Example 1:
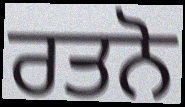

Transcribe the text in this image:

ਰਤਨੋ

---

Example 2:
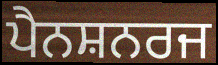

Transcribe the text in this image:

ਪੈਨਸ਼ਨਰਜ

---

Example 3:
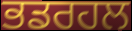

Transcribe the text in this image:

ਭਡਰਹਲ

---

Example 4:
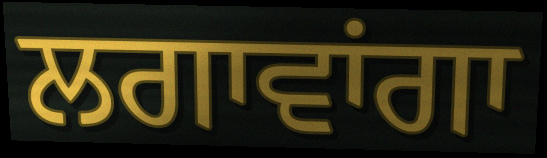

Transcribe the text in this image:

ਲਗਾਵਾਂਗਾ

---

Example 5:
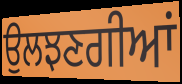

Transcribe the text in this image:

ਉਲਝਣਗੀਆਂ